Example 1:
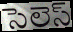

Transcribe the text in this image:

సెలెస్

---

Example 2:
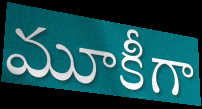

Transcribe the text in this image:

మూకీగా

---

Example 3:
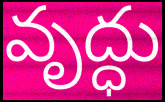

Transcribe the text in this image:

వృద్ధు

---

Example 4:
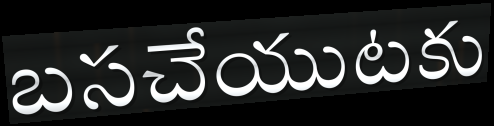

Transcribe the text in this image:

బసచేయుటకు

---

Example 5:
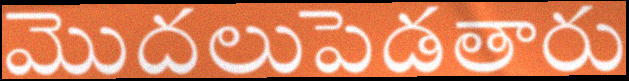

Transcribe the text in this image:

మొదలుపెడతారు